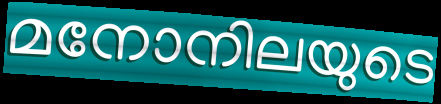
മനോനിലയുടെ